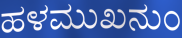
ಹಳಮುಖನುಂ